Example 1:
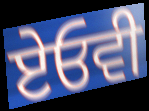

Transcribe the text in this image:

ਏਓਵੀ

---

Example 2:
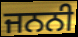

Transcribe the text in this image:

ਜਨਨੀ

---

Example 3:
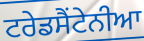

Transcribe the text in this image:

ਟਰੇਡਸੈਂਟੇਨੀਆ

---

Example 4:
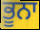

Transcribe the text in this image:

ਭੂਨਾ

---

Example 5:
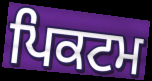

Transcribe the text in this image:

ਪਿਕਟਮ